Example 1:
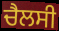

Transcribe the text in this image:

ਚੈਲਸੀ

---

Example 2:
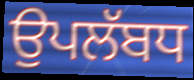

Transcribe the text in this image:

ਉਪਲੱਬਧ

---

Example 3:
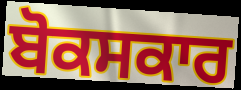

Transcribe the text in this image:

ਬੋਕਸਕਾਰ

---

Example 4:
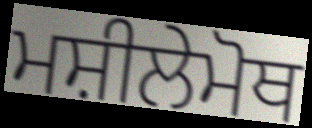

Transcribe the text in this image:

ਮਸ਼ੀਲੇਮੋਥ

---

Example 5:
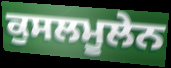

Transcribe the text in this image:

ਕੁਸਲਮੂਲੇਨ